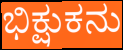
ಭಿಕ್ಷುಕನು